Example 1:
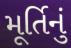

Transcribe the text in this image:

મૂર્તિનું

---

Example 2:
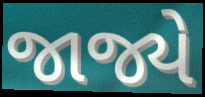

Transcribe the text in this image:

જાજ્યે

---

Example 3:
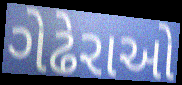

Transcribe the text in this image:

ગેઢેરાઓ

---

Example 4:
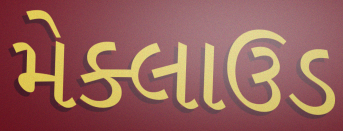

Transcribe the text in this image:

મેક્લાઉડ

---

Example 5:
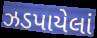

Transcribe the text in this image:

ઝડપાયેલાં